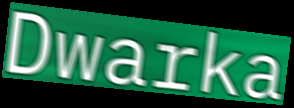
Dwarka